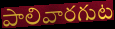
పాలివారగుట